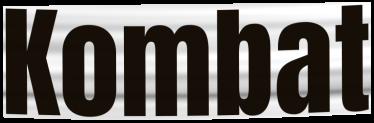
Kombat